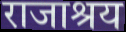
राजाश्रय